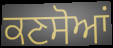
ਕਣਸੋਆਂ